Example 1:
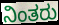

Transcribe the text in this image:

ನಿಂತರು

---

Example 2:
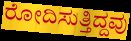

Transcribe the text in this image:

ರೋದಿಸುತ್ತಿದ್ದವು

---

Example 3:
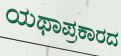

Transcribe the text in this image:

ಯಥಾಪ್ರಕಾರದ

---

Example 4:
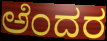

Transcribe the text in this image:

ಅೆಂದರ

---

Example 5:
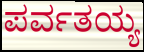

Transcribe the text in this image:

ಪರ್ವತಯ್ಯ